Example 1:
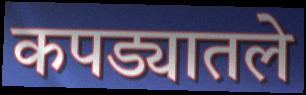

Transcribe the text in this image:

कपड्यातले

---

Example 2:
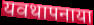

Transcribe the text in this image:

यवथापनाया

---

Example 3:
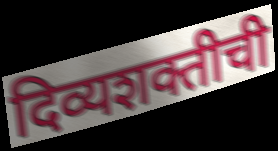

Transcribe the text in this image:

दिव्यशक्तीची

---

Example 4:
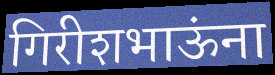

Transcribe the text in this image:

गिरीशभाऊंना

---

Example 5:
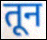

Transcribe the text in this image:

तून